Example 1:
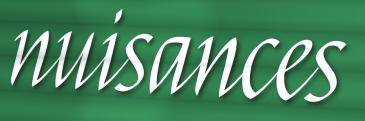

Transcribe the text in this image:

nuisances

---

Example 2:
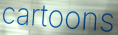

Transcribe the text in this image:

cartoons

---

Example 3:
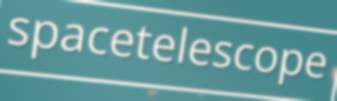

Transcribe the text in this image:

spacetelescope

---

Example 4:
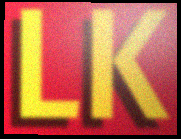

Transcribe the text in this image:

LK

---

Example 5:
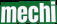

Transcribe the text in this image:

mechi